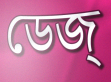
ডেজ্